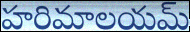
హరిమాలయమ్